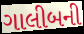
ગાલીબની